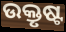
ଉକ୍ତୃଷ୍ଟ